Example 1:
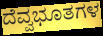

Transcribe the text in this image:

ದೆವ್ವಭೂತಗಳ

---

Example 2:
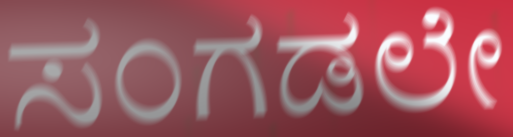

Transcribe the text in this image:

ಸಂಗಡಲೇ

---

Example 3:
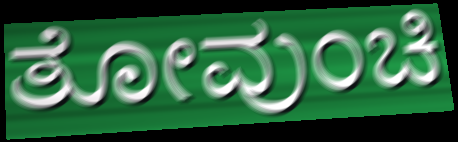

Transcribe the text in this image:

ತೋವುಂಚಿ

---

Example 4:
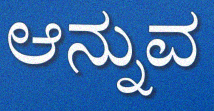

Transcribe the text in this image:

ಆನ್ನುವ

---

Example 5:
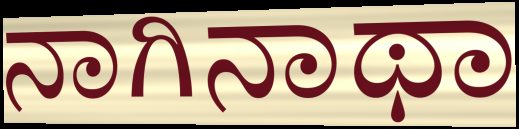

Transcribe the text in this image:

ನಾಗಿನಾಥಾ